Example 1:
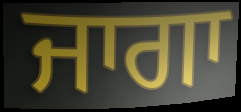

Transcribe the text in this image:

ਜਾਗਾ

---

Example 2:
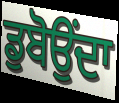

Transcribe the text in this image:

ਡੁਬੋਉਂਦਾ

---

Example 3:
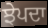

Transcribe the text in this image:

ਝੇਪਦਾ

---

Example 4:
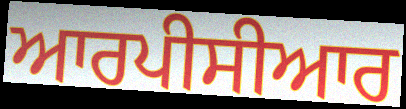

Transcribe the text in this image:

ਆਰਪੀਸੀਆਰ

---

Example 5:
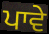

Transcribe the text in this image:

ਪਾਵੇ